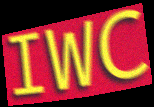
IWC